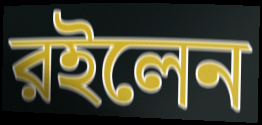
রইলেন